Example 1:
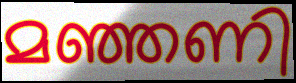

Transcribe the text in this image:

മഞ്ഞണി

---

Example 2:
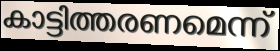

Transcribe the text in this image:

കാട്ടിത്തരണമെന്ന്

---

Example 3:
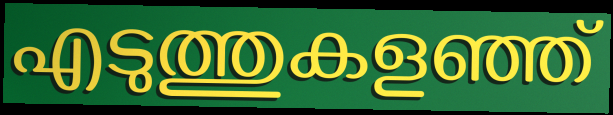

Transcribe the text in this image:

എടുത്തുകളഞ്ഞ്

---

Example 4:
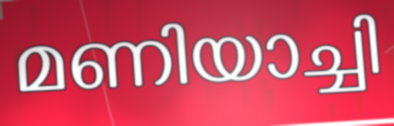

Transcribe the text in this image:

മണിയാച്ചി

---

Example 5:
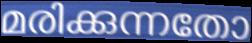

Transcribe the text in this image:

മരിക്കുന്നതോ